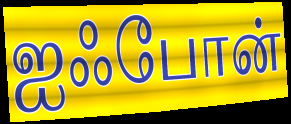
ஐஃபோன்